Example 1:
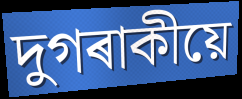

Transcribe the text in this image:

দুগৰাকীয়ে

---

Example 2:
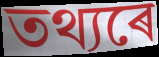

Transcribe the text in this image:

তথ্যৰে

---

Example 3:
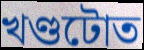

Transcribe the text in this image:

খণ্ডটোত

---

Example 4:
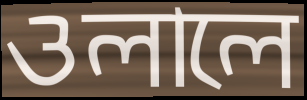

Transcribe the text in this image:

ওলালে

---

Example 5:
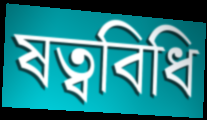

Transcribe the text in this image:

ষত্ববিধি